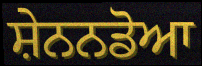
ਸ਼ੇਨਨਡੋਆ